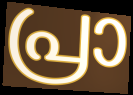
പ്രാ